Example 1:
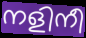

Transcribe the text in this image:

നളിനീ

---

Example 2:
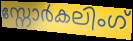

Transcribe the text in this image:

സ്നോർകലിംഗ്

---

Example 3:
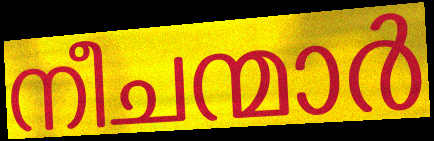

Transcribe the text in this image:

നീചന്മാർ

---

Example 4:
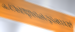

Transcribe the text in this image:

പറഞ്ഞുകൊടുക്കാൻ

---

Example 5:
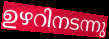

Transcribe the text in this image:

ഉഴറിനടന്നു